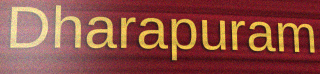
Dharapuram